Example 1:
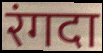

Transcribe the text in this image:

रंगदा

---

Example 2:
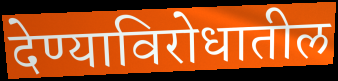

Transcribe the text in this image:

देण्याविरोधातील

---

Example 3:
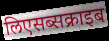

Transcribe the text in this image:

लिएसब्सक्राइब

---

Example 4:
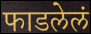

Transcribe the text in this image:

फाडलेलं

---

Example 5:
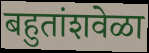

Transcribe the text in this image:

बहुतांशवेळा